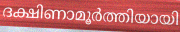
ദക്ഷിണാമൂർത്തിയായി